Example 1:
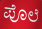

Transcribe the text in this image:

ಪೊಲೆ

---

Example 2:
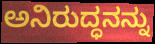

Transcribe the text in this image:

ಅನಿರುದ್ಧನನ್ನು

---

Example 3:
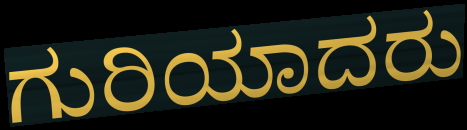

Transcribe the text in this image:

ಗುರಿಯಾದರು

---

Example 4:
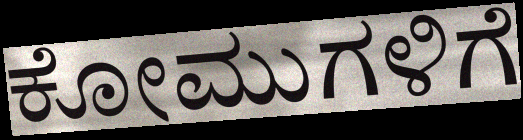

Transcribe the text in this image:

ಕೋಮುಗಳಿಗೆ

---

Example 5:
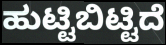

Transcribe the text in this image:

ಹುಟ್ಟಿಬಿಟ್ಟಿದೆ